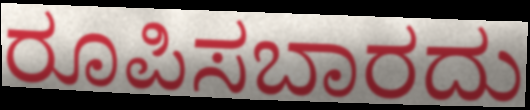
ರೂಪಿಸಬಾರದು